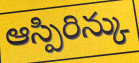
ఆస్పిరిన్కు